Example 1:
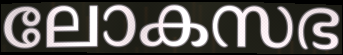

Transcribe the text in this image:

ലോകസഭ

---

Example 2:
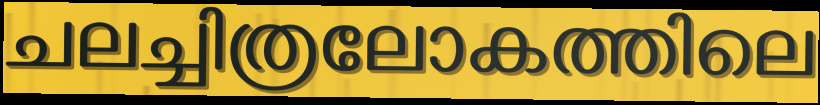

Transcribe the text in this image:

ചലച്ചിത്രലോകത്തിലെ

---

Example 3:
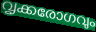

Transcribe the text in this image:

വൃക്കരോഗവും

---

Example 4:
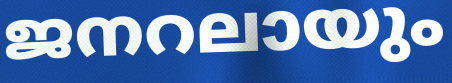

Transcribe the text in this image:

ജനറലായും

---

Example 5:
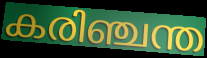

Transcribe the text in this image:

കരിഞ്ചന്ത